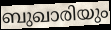
ബുഖാരിയും